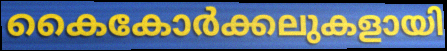
കൈകോർക്കലുകളായി